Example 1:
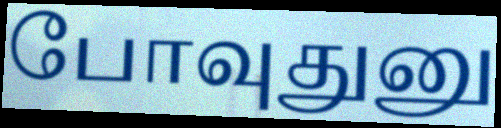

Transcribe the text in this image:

போவுதுனு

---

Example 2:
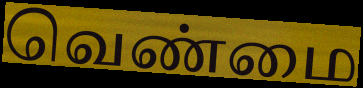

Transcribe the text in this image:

வெண்மை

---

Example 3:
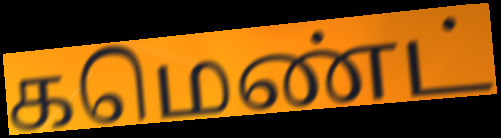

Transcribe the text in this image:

கமெண்ட்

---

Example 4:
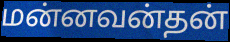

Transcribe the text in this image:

மன்னவன்தன்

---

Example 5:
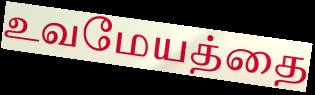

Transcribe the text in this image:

உவமேயத்தை